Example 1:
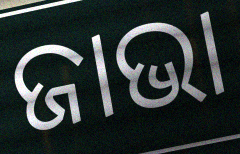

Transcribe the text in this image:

ଜାଭା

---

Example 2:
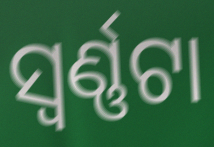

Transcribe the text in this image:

ସ୍ୱର୍ଣ୍ଣଟା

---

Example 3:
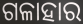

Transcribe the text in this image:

ଗଳାହାର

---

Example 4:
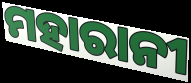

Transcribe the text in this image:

ମହାରାନୀ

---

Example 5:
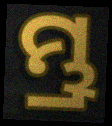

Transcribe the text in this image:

ମ୍ଭ୍ର